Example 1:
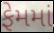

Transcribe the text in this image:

ફેમમાં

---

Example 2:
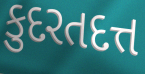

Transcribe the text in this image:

કુદરતદત્ત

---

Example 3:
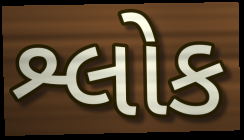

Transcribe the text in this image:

શ્લોક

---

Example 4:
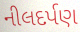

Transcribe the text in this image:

નીલદર્પણ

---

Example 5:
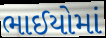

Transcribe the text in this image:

ભાઈયોમાં